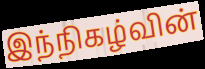
இந்நிகழ்வின்